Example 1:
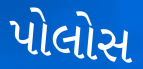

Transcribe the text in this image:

પોલોસ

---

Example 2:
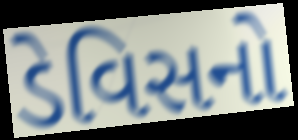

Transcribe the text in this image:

ડેવિસનો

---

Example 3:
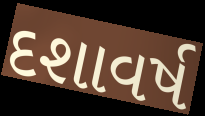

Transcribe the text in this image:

દશાવર્ષ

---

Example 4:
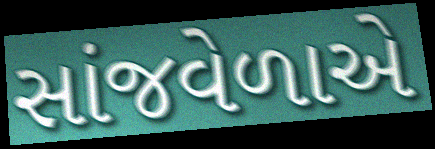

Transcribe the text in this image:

સાંજવેળાએ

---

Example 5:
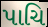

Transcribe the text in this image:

પાચિ